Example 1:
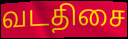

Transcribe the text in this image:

வடதிசை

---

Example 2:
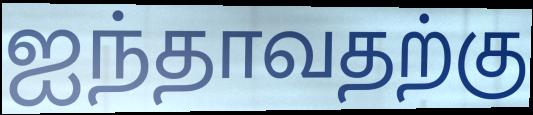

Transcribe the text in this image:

ஐந்தாவதற்கு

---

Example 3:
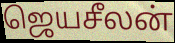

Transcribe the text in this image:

ஜெயசீலன்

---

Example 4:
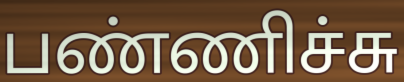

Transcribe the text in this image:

பண்ணிச்சு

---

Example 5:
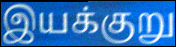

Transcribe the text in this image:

இயக்குறு